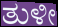
ತುಳೀ